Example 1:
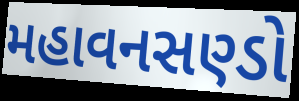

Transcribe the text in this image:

મહાવનસણ્ડો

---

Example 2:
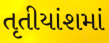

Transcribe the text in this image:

તૃતીયાંશમાં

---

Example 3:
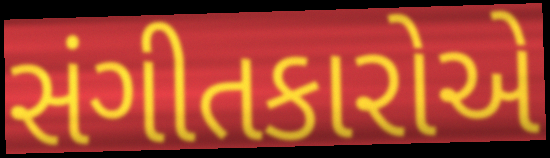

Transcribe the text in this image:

સંગીતકારોએ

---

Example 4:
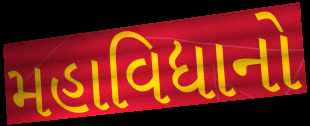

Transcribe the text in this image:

મહાવિદ્યાનો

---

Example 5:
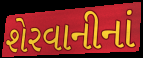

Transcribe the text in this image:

શેરવાનીનાં